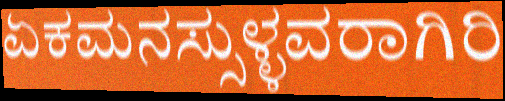
ಏಕಮನಸ್ಸುಳ್ಳವರಾಗಿರಿ